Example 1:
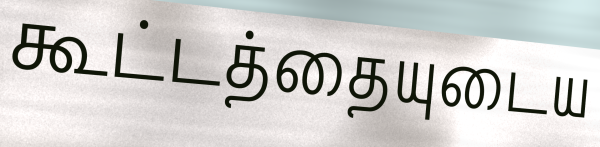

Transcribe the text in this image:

கூட்டத்தையுடைய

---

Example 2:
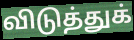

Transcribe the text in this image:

விடுத்துக்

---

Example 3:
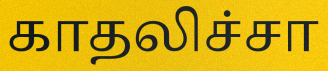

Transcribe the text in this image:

காதலிச்சா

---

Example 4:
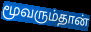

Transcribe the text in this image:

மூவரும்தான்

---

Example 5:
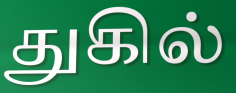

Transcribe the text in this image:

துகில்